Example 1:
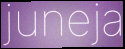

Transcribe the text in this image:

juneja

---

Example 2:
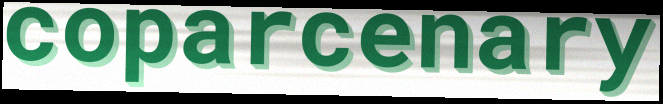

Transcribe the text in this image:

coparcenary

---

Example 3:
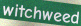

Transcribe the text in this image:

witchweed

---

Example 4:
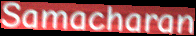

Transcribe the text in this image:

Samacharan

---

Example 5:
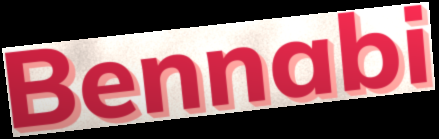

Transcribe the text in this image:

Bennabi